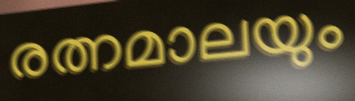
രത്നമാലയും